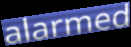
alarmed